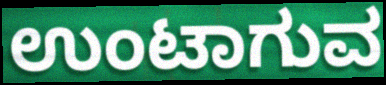
ಉಂಟಾಗುವ